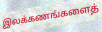
இலக்கணங்களைத்